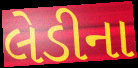
લેડીના